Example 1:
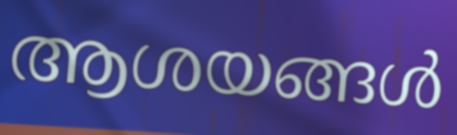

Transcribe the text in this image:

ആശയങ്ങൾ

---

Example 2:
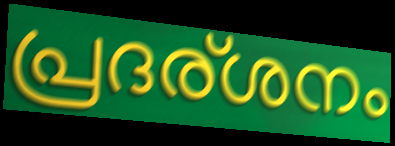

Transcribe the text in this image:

പ്രദര്ശനം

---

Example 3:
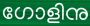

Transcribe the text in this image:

ഗോളിനു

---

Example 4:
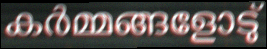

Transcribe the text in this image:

കർമ്മങ്ങളോടു്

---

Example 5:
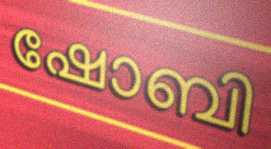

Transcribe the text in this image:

ഷോബി